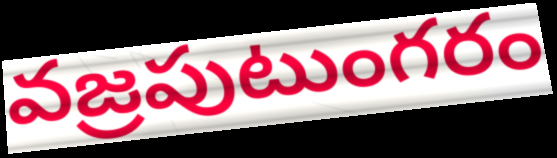
వజ్రపుటుంగరం